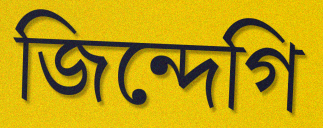
জিন্দেগি